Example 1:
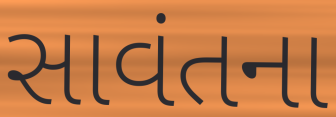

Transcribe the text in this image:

સાવંતના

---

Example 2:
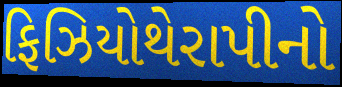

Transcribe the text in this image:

ફિઝિયોથેરાપીનો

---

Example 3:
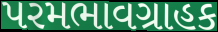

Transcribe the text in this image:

પરમભાવગ્રાહક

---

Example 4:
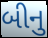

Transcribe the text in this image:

બીનુ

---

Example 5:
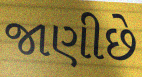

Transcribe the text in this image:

જાણીછે